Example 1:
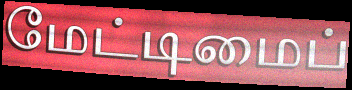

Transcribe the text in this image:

மேட்டிமைப்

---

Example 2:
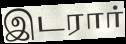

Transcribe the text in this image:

இடரார்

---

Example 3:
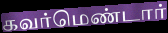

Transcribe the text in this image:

கவர்மெண்டார்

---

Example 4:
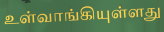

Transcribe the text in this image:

உள்வாங்கியுள்ளது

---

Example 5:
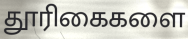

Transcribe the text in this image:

தூரிகைகளை